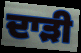
ਦਾੜੀ